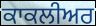
ਕਾਕਲੀਅਰ